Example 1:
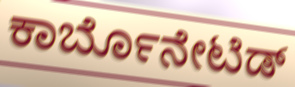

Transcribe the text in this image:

ಕಾರ್ಬೊನೇಟೆಡ್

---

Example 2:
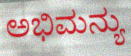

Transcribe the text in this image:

ಅಭಿಮನ್ಯು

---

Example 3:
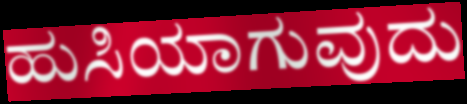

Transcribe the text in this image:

ಹುಸಿಯಾಗುವುದು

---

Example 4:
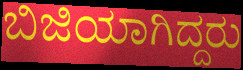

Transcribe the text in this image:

ಬಿಜಿಯಾಗಿದ್ದರು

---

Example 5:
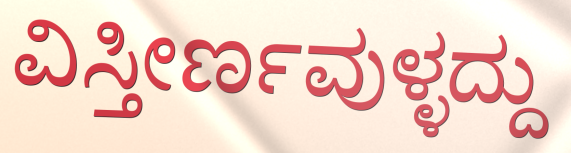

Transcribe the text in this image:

ವಿಸ್ತೀರ್ಣವುಳ್ಳದ್ದು